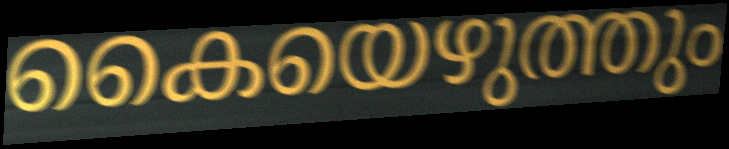
കൈയെഴുത്തും